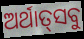
ଅର୍ଥାତ୍‌ସବୁ